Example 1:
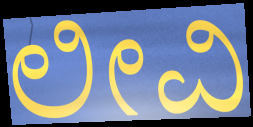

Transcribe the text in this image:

ಲೀವಿ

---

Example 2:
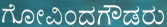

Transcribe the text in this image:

ಗೋವಿಂದಗೌಡರು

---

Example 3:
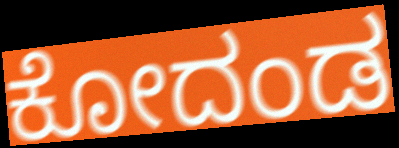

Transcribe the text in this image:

ಕೋದಂಡ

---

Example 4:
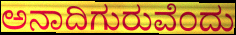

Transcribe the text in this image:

ಅನಾದಿಗುರುವೆಂದು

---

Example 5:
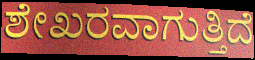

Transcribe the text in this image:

ಶೇಖರವಾಗುತ್ತಿದೆ